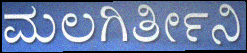
ಮಲಗಿರ್ತೀನಿ